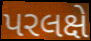
પરલક્ષે